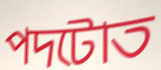
পদটোত